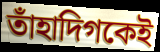
তাঁহাদিগকেই